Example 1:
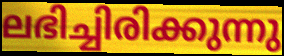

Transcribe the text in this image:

ലഭിച്ചിരിക്കുന്നു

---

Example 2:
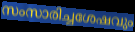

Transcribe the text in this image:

സംസാരിച്ചശേഷവും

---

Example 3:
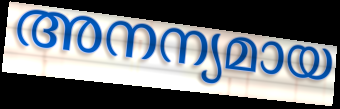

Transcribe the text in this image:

അനന്യമായ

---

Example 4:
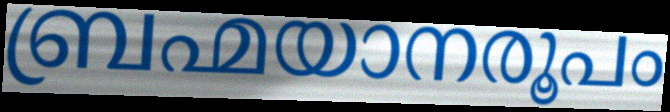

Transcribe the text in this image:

ബ്രഹ്മയാനരൂപം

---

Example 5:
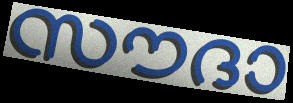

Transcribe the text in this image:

സൗദാ